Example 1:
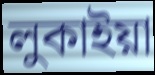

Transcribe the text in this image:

লুকাইয়া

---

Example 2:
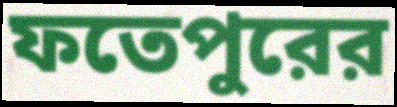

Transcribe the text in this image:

ফতেপুরের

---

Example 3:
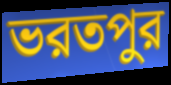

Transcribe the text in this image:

ভরতপুর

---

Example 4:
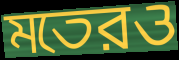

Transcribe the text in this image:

মতেরও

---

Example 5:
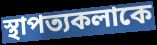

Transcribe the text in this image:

স্থাপত্যকলাকে